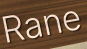
Rane